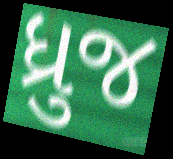
ધ્રુજ